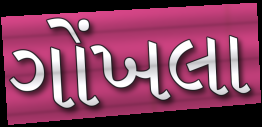
ગોંખલા